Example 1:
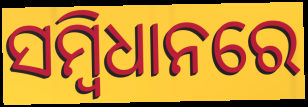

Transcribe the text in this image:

ସମ୍ବିଧାନରେ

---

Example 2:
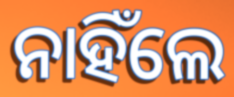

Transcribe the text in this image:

ନାହିଁଲେ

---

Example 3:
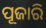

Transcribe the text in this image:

ପୂଜାରି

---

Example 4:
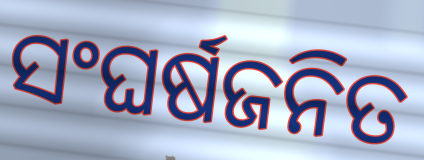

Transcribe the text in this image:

ସଂଘର୍ଷଜନିତ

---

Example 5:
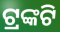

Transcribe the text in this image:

ଟ୍ରଙ୍କଟି